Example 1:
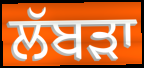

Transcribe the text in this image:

ਲੱਬੜਾ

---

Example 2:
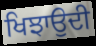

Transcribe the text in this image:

ਖਿਝਾਉਦੀ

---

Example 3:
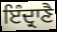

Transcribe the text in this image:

ਇੰਦ੍ਰਾਣੈ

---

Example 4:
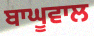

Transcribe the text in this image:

ਬਾਘੂਵਾਲ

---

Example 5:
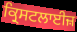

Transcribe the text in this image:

ਕ੍ਰਿਸਟਲਾਈਜ਼